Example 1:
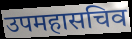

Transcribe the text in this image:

उपमहासचिव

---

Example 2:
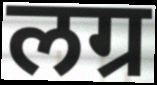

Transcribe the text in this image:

लग्र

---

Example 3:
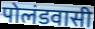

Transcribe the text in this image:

पोलंडवासी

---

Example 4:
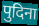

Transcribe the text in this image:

पुदिना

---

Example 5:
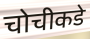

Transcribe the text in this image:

चोचीकडे